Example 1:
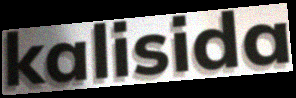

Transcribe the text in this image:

kalisida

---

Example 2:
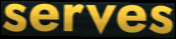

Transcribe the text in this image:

serves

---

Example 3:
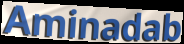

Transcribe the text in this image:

Aminadab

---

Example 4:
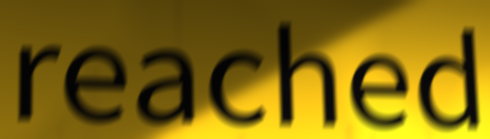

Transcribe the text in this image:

reached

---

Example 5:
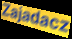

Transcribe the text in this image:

Zajadacz